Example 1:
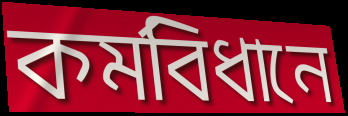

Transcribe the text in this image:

কর্মবিধানে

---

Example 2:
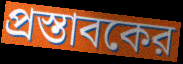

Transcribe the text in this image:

প্রস্তাবকের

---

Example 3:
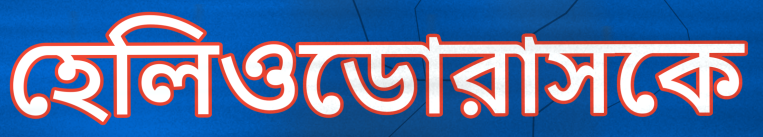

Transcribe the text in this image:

হেলিওডোরাসকে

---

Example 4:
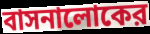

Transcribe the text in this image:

বাসনালোকের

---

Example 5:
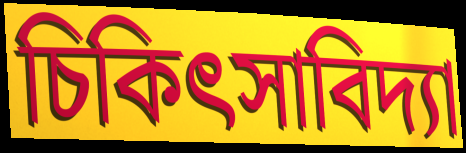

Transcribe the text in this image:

চিকিৎসাবিদ্যা